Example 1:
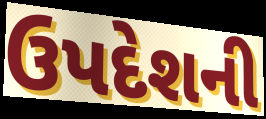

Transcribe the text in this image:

ઉપદેશની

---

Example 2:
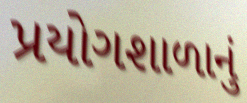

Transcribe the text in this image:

પ્રયોગશાળાનું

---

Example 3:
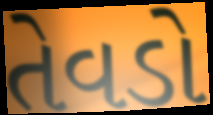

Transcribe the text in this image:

તેવડો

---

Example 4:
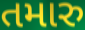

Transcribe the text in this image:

તમારુ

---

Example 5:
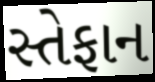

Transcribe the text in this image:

સ્તેફાન